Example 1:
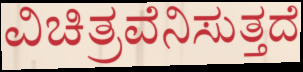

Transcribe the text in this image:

ವಿಚಿತ್ರವೆನಿಸುತ್ತದೆ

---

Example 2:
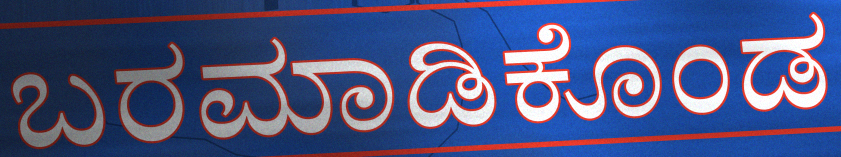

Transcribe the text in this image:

ಬರಮಾಡಿಕೊಂಡ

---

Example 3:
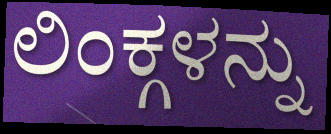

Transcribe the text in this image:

ಲಿಂಕ್ಗಳನ್ನು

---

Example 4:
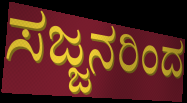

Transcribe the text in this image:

ಸಜ್ಜನರಿಂದ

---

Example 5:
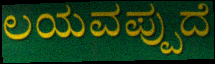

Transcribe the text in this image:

ಲಯವಪ್ಪುದೆ